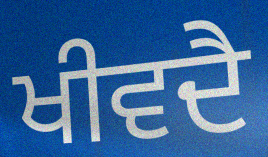
ਖੀਵਦੈ